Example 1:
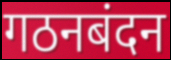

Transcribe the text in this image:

गठनबंदन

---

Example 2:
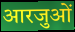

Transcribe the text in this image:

आरजुओं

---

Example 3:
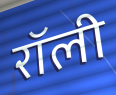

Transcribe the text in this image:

रॉली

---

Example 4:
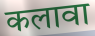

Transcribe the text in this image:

कलावा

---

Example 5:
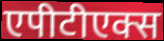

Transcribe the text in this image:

एपीटीएक्स